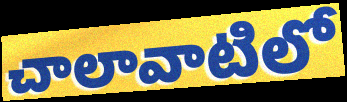
చాలావాటిలో